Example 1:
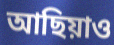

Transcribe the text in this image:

আছিয়াও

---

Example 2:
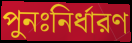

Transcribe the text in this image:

পুনঃনির্ধারণ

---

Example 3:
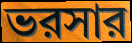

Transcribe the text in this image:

ভরসার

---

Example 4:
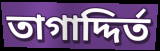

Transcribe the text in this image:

তাগাদ্দির্ত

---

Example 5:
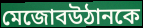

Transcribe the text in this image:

মেজোবউঠানকে